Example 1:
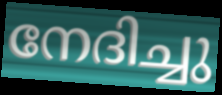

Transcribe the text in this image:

നേദിച്ചു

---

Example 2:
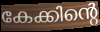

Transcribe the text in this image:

കേക്കിന്റെ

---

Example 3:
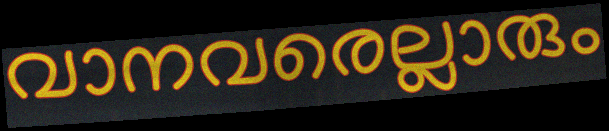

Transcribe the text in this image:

വാനവരെല്ലാരും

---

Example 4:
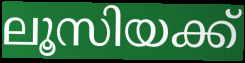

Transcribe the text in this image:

ലൂസിയക്ക്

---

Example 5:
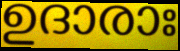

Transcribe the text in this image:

ഉദാരാഃ